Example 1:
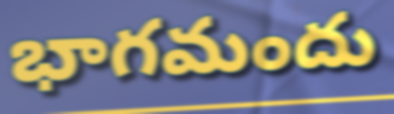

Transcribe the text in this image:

భాగమందు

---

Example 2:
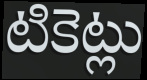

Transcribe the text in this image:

టికెట్లు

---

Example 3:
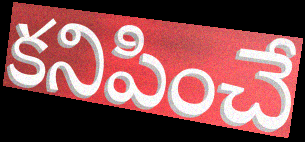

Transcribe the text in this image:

కనిపించే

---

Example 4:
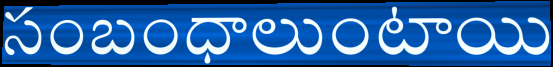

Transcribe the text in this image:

సంబంధాలుంటాయి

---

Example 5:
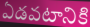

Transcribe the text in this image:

ఏడవటానికి